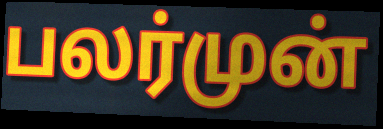
பலர்முன்